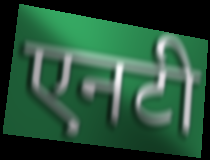
एनटी